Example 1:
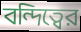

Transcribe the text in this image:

বন্দিত্বের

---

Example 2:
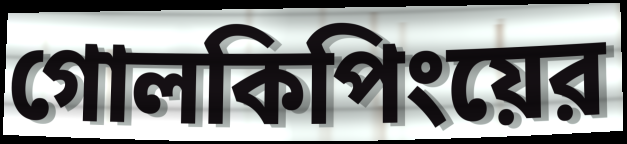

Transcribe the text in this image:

গোলকিপিংয়ের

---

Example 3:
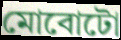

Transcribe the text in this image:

মোবোটো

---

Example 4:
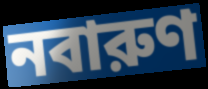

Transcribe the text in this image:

নবারুণ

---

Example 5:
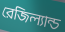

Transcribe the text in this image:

রেজিল্যান্ড